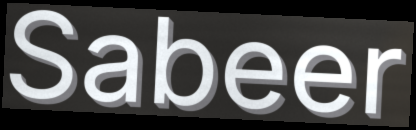
Sabeer